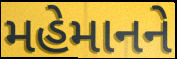
મહેમાનને